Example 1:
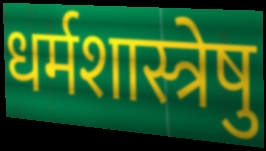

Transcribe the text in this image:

धर्मशास्त्रेषु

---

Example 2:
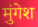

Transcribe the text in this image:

मुंगेश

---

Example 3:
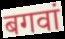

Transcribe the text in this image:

बगवां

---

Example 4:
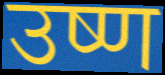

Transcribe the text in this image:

उष्ण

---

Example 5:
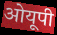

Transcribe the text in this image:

ओयूपी